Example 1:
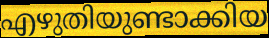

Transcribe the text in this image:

എഴുതിയുണ്ടാക്കിയ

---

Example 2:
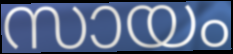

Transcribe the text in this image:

സായം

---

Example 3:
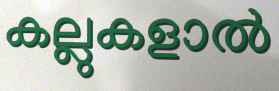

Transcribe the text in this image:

കല്ലുകളാൽ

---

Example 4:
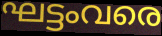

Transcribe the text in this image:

ഘട്ടംവരെ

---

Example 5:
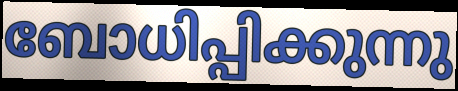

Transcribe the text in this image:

ബോധിപ്പിക്കുന്നു